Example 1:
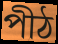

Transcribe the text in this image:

পীঠ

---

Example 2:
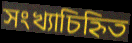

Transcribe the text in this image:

সংখ্যাচিহ্নিত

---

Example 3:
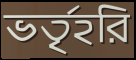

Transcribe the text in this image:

ভর্তৃহরি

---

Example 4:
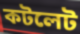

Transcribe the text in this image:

কটলেট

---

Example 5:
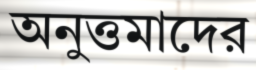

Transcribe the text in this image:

অনুত্তমাদের